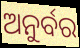
ଅନୁର୍ବର